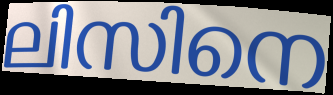
ലിസിനെ